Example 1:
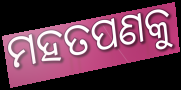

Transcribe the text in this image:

ମହତପଣକୁ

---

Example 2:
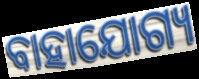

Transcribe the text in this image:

ବାହାଯୋଗ୍ୟ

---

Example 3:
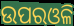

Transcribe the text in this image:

ଉପରଓଳି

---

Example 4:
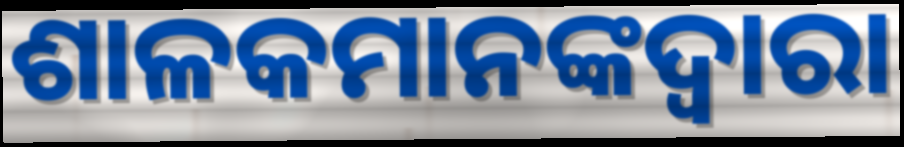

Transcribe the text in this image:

ଶାଳକମାନଙ୍କଦ୍ୱାରା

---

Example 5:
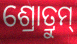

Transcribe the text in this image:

ଶ୍ରୋତ୍ରୁମ୍